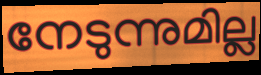
നേടുന്നുമില്ല